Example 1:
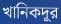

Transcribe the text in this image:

খানিকদূর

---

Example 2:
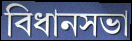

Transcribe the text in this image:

বিধানসভা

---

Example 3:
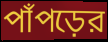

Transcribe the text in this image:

পাঁপড়ের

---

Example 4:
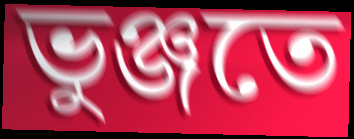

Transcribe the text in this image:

ভুঞ্জতে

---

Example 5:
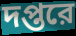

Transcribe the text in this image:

দপ্তরে